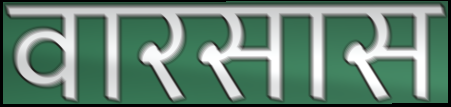
वारसास